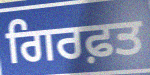
ਗਿਰਫ਼ਤ